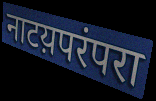
नाटय़परंपरा